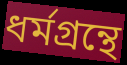
ধর্মগ্রন্থে